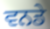
ਵਨਡੇ